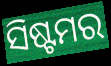
ସିଷ୍ଟମର